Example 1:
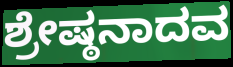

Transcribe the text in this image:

ಶ್ರೇಷ್ಠನಾದವ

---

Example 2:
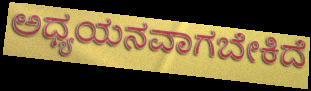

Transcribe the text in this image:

ಅಧ್ಯಯನವಾಗಬೇಕಿದೆ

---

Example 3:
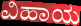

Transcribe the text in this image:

ವಿಹಾಯ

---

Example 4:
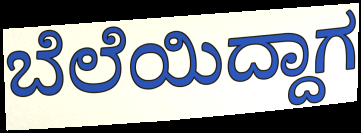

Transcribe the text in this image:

ಬೆಲೆಯಿದ್ದಾಗ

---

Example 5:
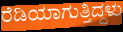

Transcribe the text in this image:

ರೆಡಿಯಾಗುತ್ತಿದ್ದಳು